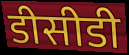
डीसीडी